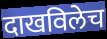
दाखविलेच